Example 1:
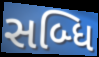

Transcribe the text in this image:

સબ્ધિ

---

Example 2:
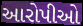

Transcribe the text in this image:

આરોપીઓ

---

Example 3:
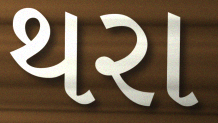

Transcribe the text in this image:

થરા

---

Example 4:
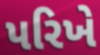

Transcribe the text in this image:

પરિખે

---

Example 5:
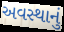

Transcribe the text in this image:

અવસ્થાનું